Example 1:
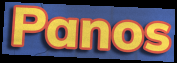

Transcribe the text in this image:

Panos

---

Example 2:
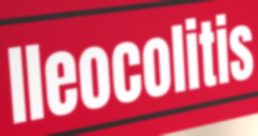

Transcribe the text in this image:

Ileocolitis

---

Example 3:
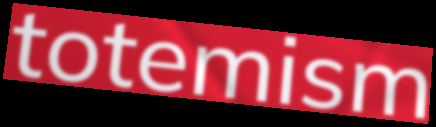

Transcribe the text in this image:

totemism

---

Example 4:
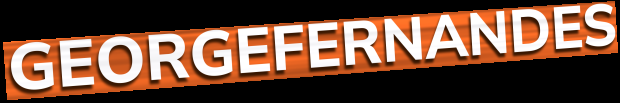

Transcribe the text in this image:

GEORGEFERNANDES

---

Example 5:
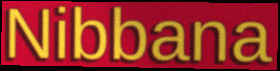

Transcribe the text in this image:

Nibbana